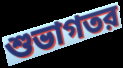
শুভাগতর